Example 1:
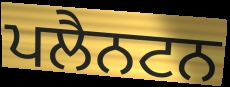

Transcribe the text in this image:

ਪਲੈਨਟਨ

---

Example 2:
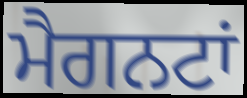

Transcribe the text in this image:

ਮੈਗਨਟਾਂ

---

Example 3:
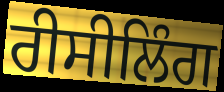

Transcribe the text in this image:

ਰੀਸੀਲਿੰਗ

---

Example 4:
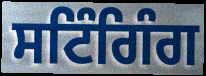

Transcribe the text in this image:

ਸਟਿੰਗਿੰਗ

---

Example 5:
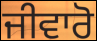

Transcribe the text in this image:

ਜੀਵਾਰੋ